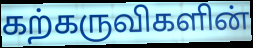
கற்கருவிகளின்